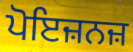
ਪੋਇਜ਼ਨਜ਼